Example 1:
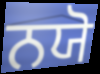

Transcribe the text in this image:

ਨਯੋ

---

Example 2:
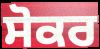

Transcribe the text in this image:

ਸੋਕਰ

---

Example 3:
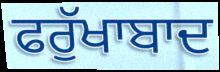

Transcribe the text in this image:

ਫਰੁੱਖਾਬਾਦ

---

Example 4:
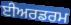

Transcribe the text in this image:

ਈਅਰਡਰਮ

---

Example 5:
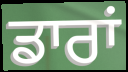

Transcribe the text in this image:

ਡਾਰਾਂ